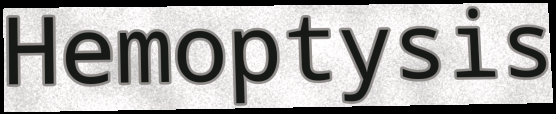
Hemoptysis